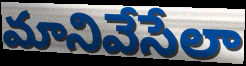
మానివేసేలా